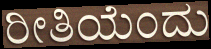
ರೀತಿಯೆಂದು